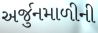
અર્જુનમાળીની